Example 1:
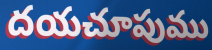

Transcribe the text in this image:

దయచూపుము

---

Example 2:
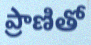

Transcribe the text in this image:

ప్రాణితో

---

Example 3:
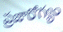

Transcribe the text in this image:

ప్రజారోగ్యం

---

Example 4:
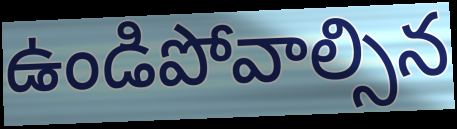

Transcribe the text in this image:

ఉండిపోవాల్సిన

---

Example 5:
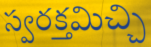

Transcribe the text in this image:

స్వరక్తమిచ్చి